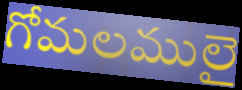
గోమలములై